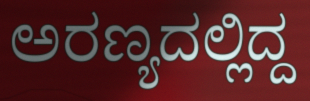
ಅರಣ್ಯದಲ್ಲಿದ್ದ